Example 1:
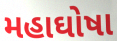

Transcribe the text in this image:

મહાઘોષા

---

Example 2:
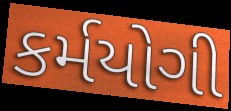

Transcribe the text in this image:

કર્મયોગી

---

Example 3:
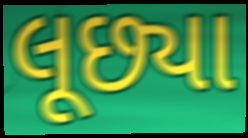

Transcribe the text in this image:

લૂછ્યા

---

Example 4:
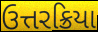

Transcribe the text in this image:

ઉત્તરક્રિયા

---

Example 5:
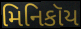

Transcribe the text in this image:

મિનિકૉય